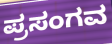
ಪ್ರಸಂಗವ